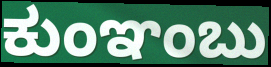
ಕುಂಞಂಬು